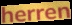
herren